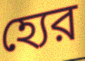
হ্যের